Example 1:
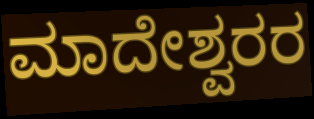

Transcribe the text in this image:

ಮಾದೇಶ್ವರರ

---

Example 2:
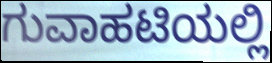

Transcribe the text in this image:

ಗುವಾಹಟಿಯಲ್ಲಿ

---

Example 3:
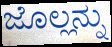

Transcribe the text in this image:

ಜೊಲ್ಲನ್ನು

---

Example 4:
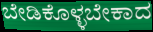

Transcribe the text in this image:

ಬೇಡಿಕೊಳ್ಳಬೇಕಾದ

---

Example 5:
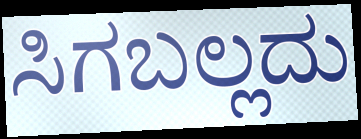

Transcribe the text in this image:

ಸಿಗಬಲ್ಲದು